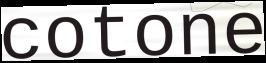
cotone